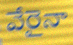
వేరైనా